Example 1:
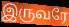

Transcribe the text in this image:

இருவரே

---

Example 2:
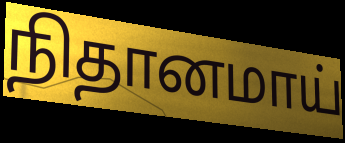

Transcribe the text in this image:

நிதானமாய்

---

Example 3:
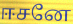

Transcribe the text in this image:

ஈசனே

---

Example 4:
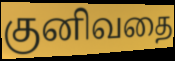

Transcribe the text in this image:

குனிவதை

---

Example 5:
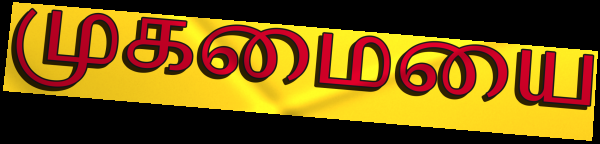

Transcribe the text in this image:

முகமையை